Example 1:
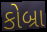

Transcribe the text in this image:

કોબ્રા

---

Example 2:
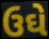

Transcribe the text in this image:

ઉઘે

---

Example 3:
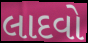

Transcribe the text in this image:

લાદવો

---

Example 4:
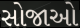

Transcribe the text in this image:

સોજાઓ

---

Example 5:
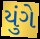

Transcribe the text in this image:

યુંગે